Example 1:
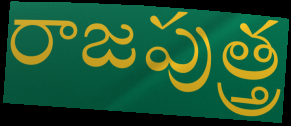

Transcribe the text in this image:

రాజపుత్త్ర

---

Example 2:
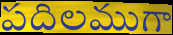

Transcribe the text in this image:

పదిలముగా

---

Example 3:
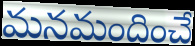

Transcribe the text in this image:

మనమందించే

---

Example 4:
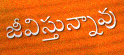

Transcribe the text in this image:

జీవిస్తున్నావు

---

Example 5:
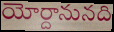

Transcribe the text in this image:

యోర్దానునది